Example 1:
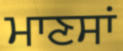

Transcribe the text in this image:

ਮਾਣਸਾਂ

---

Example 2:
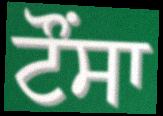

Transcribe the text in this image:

ਟੌਂਸਾ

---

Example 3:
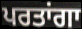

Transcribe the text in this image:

ਪਰਤਾਂਗਾ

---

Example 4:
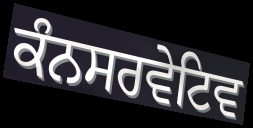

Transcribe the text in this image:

ਕੰਨਸਰਵੇਟਿਵ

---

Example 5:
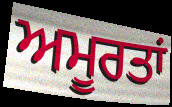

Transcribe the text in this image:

ਅਮੂਰਤਾਂ